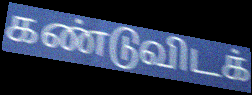
கண்டுவிடக்